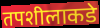
तपशीलाकडे